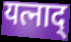
यत्नाद्